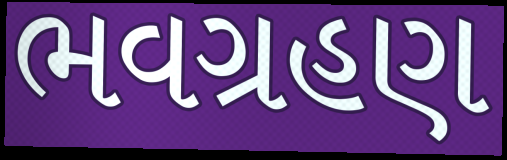
ભવગ્રહણ